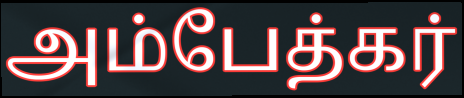
அம்பேத்கர்